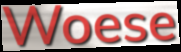
Woese